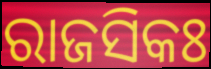
ରାଜସିକଃ